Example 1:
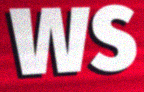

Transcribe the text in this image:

ws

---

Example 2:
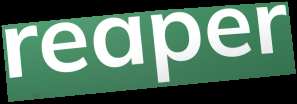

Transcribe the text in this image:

reaper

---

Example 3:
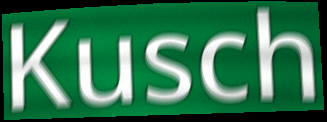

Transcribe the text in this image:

Kusch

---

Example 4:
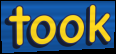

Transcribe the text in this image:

took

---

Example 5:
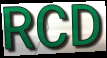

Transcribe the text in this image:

RCD